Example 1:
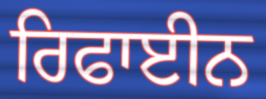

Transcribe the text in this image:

ਰਿਫਾਈਨ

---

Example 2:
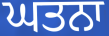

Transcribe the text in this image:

ਘਤਨਾ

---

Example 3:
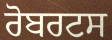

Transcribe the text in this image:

ਰੋਬਰਟਸ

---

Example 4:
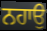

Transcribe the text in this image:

ਨਹਾਉ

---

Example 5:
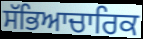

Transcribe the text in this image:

ਸੱਭਿਆਚਾਰਿਕ